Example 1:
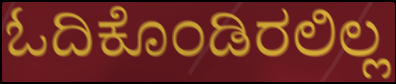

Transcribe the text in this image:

ಓದಿಕೊಂಡಿರಲಿಲ್ಲ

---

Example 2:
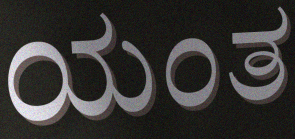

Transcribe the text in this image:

ಯಂತ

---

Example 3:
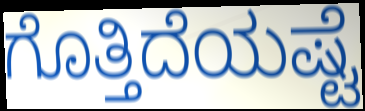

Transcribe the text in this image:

ಗೊತ್ತಿದೆಯಷ್ಟೆ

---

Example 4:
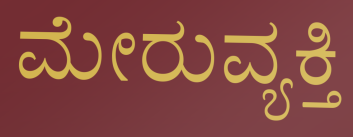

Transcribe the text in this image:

ಮೇರುವ್ಯಕ್ತಿ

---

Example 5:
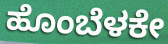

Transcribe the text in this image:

ಹೊಂಬೆಳಕೇ